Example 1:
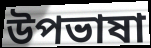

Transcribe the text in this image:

উপভাষা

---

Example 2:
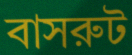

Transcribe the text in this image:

বাসরুট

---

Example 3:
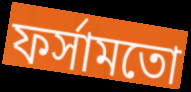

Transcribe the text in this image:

ফর্সামতো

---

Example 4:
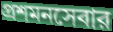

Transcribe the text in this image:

প্রশমনসেবার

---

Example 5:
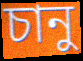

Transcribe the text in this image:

চানু